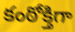
కంఠోక్తిగా